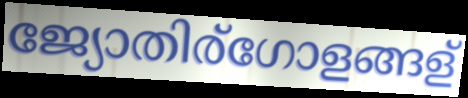
ജ്യോതിര്ഗോളങ്ങള്